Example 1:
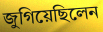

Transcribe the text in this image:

জুগিয়েছিলেন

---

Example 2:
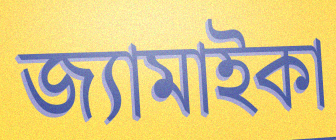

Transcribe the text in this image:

জ্যামাইকা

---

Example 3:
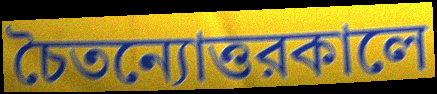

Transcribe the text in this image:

চৈতন্যোত্তরকালে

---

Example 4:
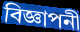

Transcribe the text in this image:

বিজ্ঞাপনী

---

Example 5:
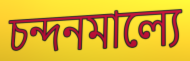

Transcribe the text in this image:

চন্দনমাল্যে